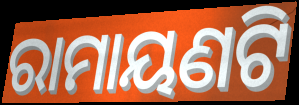
ରାମାୟଣଟି